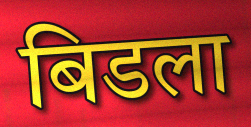
बिडला